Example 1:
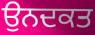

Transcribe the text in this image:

ਉਨਦਕਤ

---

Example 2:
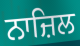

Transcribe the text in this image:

ਨਾਜ਼ਿਲ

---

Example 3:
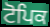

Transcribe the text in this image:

ਟੋਪਿਕ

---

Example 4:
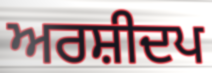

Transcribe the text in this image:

ਅਰਸ਼ੀਦਪ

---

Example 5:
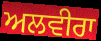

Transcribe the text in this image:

ਅਲਵੀਰਾ